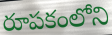
రూపకంలోని